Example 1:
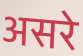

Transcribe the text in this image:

असरे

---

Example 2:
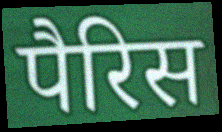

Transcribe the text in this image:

पैरिस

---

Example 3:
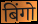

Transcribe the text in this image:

बिंगो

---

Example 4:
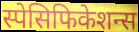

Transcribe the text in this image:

स्पेसिफिकेशन्स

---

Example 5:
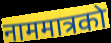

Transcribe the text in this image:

नाममात्रको